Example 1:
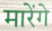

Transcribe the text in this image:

मारेंगे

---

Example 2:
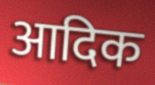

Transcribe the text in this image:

आदिक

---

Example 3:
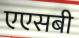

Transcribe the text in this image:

एएसबी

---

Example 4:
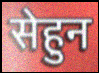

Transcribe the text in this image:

सेहुन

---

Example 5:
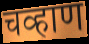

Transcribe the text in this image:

चव्हाण